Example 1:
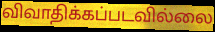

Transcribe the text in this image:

விவாதிக்கப்படவில்லை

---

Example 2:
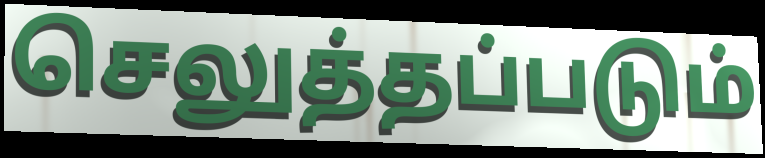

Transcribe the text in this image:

செலுத்தப்படும்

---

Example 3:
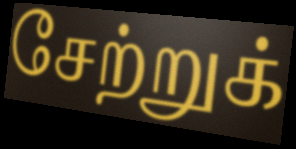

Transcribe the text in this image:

சேற்றுக்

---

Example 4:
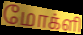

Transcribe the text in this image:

மோக்ளி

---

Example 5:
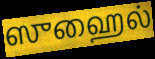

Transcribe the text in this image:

ஸுஹைல்